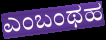
ಎಂಬಂಥಹ